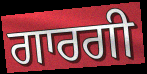
ਗਾਰਗੀ